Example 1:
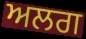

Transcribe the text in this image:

ਅਲਗ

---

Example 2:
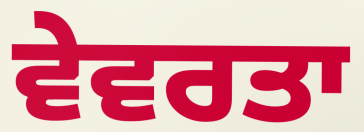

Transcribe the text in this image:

ਵੇਵਰਤਾ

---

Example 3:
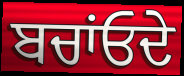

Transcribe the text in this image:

ਬਚਾਂਓਦੇ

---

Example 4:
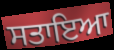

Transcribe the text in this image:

ਸਤਾਇਆ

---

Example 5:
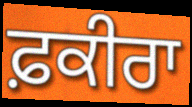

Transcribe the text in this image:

ਫ਼ਕੀਰਾ